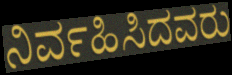
ನಿರ್ವಹಿಸಿದವರು